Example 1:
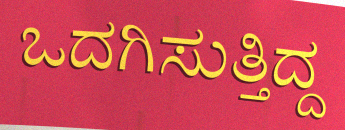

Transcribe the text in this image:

ಒದಗಿಸುತ್ತಿದ್ದ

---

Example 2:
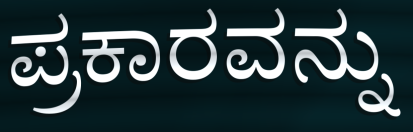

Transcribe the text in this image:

ಪ್ರಕಾರವನ್ನು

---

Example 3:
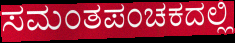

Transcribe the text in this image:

ಸಮಂತಪಂಚಕದಲ್ಲಿ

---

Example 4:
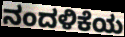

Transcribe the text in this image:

ನಂದಳಿಕೆಯ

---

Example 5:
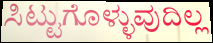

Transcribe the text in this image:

ಸಿಟ್ಟುಗೊಳ್ಳುವುದಿಲ್ಲ